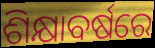
ଶିକ୍ଷାବର୍ଷରେ